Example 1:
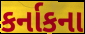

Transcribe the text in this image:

કર્નાકના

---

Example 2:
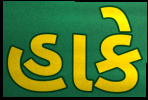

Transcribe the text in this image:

હાકે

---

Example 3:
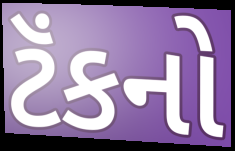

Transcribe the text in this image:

ટૅંકનો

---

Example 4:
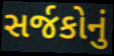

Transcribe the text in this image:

સર્જકોનું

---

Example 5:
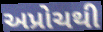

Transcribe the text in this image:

અપ્રોચથી